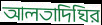
আলতাদিঘির